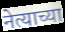
नेत्याच्या